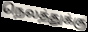
நெலத்துக்கு